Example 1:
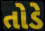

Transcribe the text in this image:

તોડે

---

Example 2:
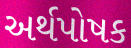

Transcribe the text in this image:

અર્થપોષક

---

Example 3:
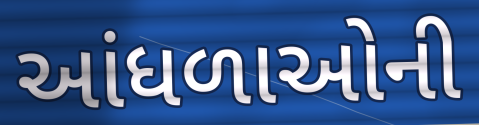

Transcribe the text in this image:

આંધળાઓની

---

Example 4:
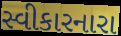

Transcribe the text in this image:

સ્વીકારનારા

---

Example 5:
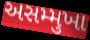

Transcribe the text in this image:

અસમ્મુખા